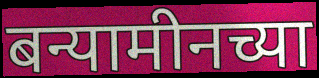
बन्यामीनच्या